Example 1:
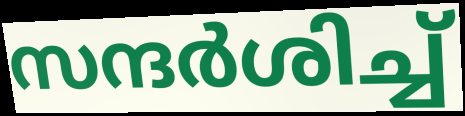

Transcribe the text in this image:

സന്ദർശിച്ച്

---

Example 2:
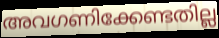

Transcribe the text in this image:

അവഗണിക്കേണ്ടതില്ല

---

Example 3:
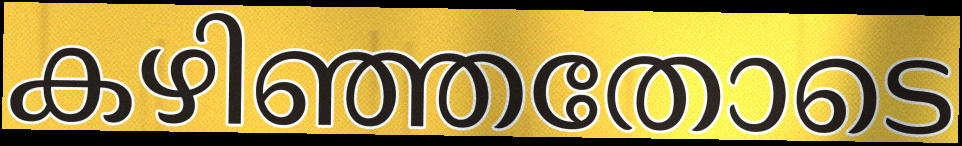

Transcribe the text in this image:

കഴിഞ്ഞതോടെ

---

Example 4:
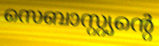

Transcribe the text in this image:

സെബാസ്റ്റ്യന്റെ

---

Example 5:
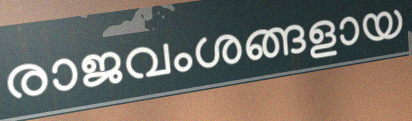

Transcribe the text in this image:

രാജവംശങ്ങളായ